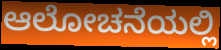
ಆಲೋಚನೆಯಲ್ಲಿ